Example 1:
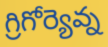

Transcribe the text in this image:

గ్రిగోర్యెవ్న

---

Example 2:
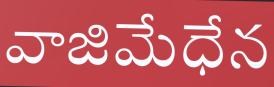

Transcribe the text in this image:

వాజిమేధేన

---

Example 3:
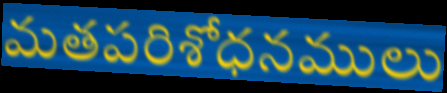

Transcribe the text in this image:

మతపరిశోధనములు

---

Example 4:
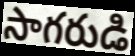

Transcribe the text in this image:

సాగరుడి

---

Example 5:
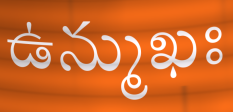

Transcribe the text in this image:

ఉన్ముఖః